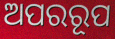
ଅପରରୂପ